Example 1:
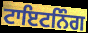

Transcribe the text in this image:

ਟਾਇਟਨਿੰਗ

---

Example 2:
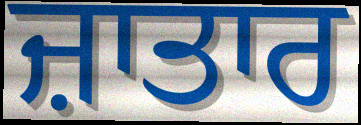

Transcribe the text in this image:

ਜ਼ਾਤਾਰ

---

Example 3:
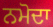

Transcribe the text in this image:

ਨਮੋਦਾ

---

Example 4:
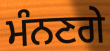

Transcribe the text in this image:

ਮੰਨਣਗੇ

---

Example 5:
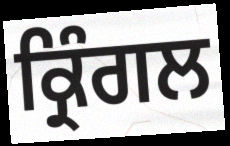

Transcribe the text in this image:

ਕ੍ਰਿੰਗਲ